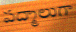
పద్మాలుగా